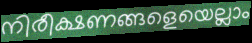
നിരീക്ഷണങ്ങളെയെല്ലാം